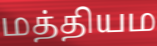
மத்தியம